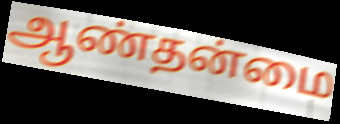
ஆண்தன்மை